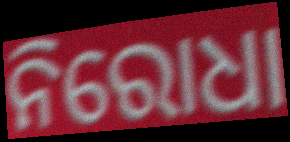
ନିରୋଧା